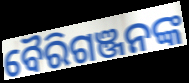
ବୈରିଗଞ୍ଜନଙ୍କ